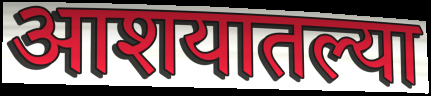
आशयातल्या